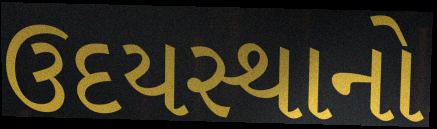
ઉદયસ્થાનો